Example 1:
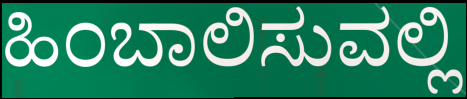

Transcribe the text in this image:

ಹಿಂಬಾಲಿಸುವಲ್ಲಿ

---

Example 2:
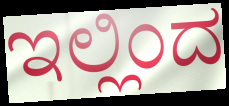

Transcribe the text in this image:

ಇಲ್ಲಿಂದ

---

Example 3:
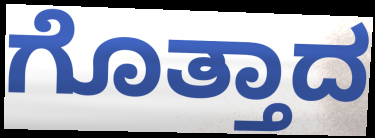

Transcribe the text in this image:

ಗೊತ್ತಾದ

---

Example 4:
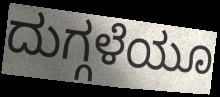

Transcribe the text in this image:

ದುಗ್ಗಳೆಯೂ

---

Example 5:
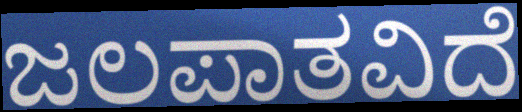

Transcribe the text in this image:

ಜಲಪಾತವಿದೆ